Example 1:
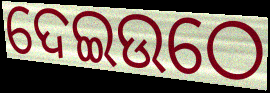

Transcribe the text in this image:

ଦେଇଉଠେ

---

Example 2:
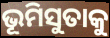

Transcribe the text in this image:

ଭୂମିସୁତାକୁ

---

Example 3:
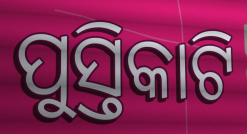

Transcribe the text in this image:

ପୁସ୍ତିକାଟି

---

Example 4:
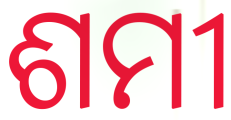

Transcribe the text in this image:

ଶମୀ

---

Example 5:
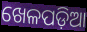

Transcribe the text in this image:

ଖେଳପଡ଼ିଆ